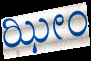
ಝೀಂ